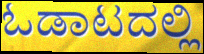
ಓಡಾಟದಲ್ಲಿ